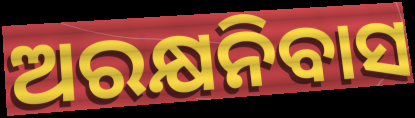
ଅରକ୍ଷନିବାସ